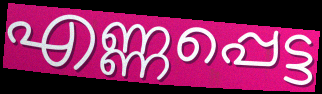
എണ്ണപ്പെട്ട